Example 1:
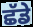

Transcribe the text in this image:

ਛੱਡੇ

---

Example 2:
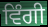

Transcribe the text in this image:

ਵਿੰਗੀ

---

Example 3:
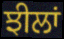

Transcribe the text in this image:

ਝੀਲਾਂ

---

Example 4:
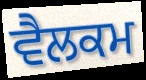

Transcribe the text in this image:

ਵੈਲਕਮ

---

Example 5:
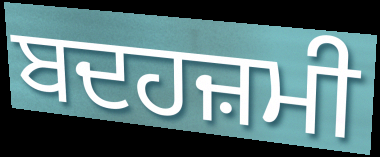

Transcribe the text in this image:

ਬਦਹਜ਼ਮੀ